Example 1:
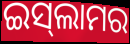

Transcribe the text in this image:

ଇସ୍‍ଲାମର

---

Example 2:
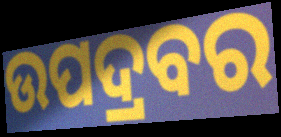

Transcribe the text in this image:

ଉପଦ୍ରବର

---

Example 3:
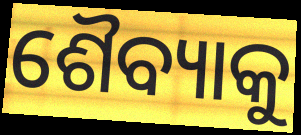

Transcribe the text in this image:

ଶୈବ୍ୟାକୁ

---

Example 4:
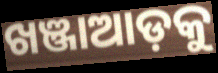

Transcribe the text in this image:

ଖଞ୍ଜାଆଡ଼କୁ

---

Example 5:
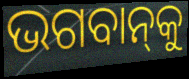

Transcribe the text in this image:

ଭଗବାନ୍‌କୁ